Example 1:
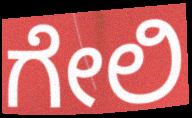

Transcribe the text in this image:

ಗೇಲಿ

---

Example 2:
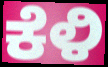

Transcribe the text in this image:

ಕೆಳಿ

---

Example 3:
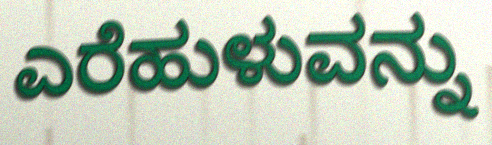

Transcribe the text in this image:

ಎರೆಹುಳುವನ್ನು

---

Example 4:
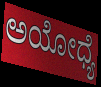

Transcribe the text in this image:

ಅಯೋಧ್ಯೆ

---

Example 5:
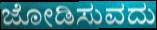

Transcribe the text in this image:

ಜೋಡಿಸುವದು